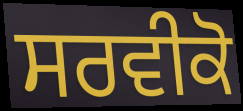
ਸਰਵੀਕੋ